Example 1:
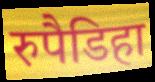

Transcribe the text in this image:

रुपैडिहा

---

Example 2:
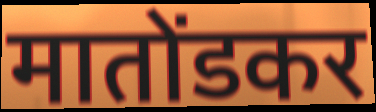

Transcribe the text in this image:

मातोंडकर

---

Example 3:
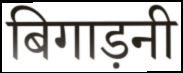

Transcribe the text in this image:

बिगाड़नी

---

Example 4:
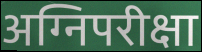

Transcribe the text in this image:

अग्निपरीक्षा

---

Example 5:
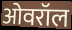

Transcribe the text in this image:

ओवरॉल